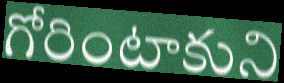
గోరింటాకుని